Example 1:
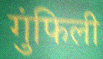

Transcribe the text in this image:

गुंफिली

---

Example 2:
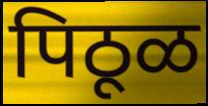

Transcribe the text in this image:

पिठूळ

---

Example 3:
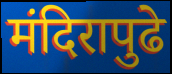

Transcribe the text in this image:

मंदिरापुढे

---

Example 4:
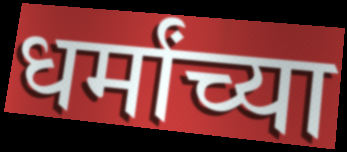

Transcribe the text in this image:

धर्मांच्या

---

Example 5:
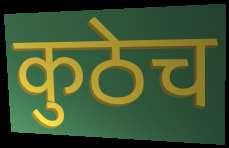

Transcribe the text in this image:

कुठेच